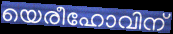
യെരീഹോവിന്